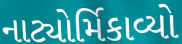
નાટ્યોર્મિકાવ્યો